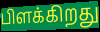
பிளக்கிறது